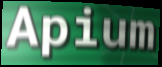
Apium